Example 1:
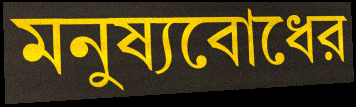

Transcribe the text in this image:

মনুষ্যবোধের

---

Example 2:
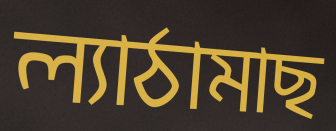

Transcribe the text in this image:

ল্যাঠামাছ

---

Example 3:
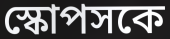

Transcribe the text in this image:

স্কোপসকে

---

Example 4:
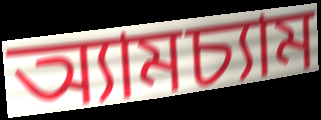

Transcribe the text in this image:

অ্যামচ্যাম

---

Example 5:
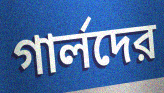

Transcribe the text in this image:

গার্লদের